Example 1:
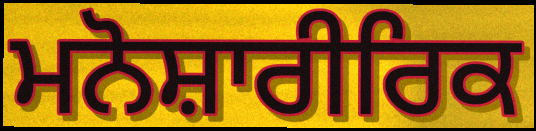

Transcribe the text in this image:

ਮਨੋਸ਼ਾਰੀਰਿਕ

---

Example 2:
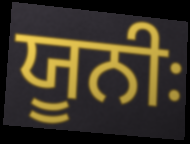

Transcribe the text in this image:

ਯੂਨੀਃ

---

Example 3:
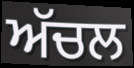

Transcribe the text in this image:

ਅੱਚਲ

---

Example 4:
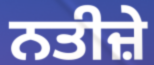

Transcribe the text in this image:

ਨਤੀਜ਼ੇ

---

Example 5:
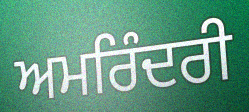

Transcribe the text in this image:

ਅਮਰਿੰਦਰੀ